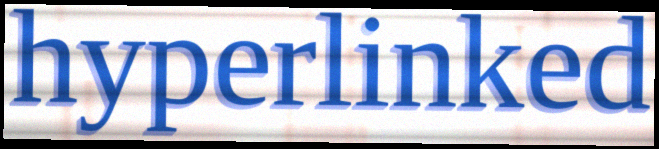
hyperlinked